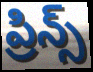
ప్రిన్స్